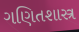
ગણિતશાસ્ત્ર